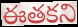
ఈతకని